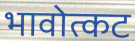
भावोत्कट